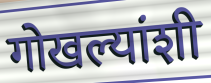
गोखल्यांशी